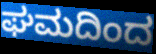
ಘಮದಿಂದ